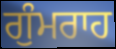
ਗੁੰਮਰਾਹ